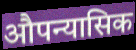
औपन्यासिक